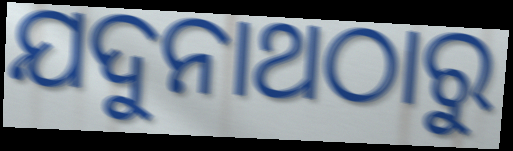
ଯଦୁନାଥଠାରୁ